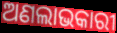
ଅଣଲାଭକାରୀ